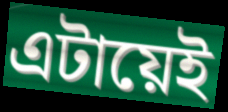
এটায়েই